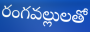
రంగవల్లులతో